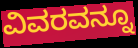
ವಿವರವನ್ನೂ